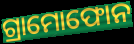
ଗ୍ରାମୋଫୋନ